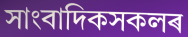
সাংবাদিকসকলৰ